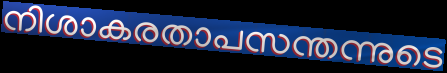
നിശാകരതാപസന്തന്നുടെ